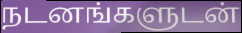
நடனங்களுடன்